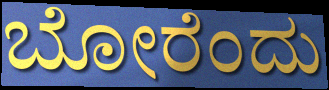
ಬೋರೆಂದು